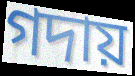
গদায়